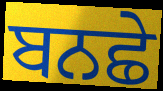
ਬਨਛੇ